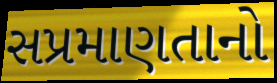
સપ્રમાણતાનો